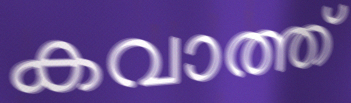
കവാത്ത്